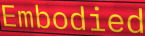
Embodied